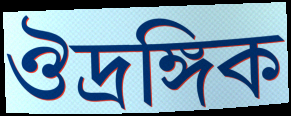
ঔদ্রঙ্গিক